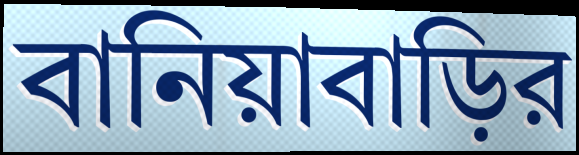
বানিয়াবাড়ির